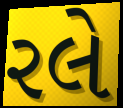
રલે